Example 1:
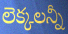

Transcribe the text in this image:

లెక్కలన్నీ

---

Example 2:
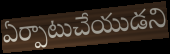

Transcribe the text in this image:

ఏర్పాటుచేయుడని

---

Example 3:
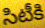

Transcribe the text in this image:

సిటీకి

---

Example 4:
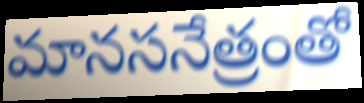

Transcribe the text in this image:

మానసనేత్రంతో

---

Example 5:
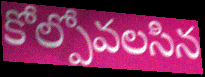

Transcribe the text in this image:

కోల్పోవలసిన